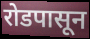
रोडपासून